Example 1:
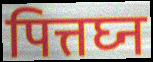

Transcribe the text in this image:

पित्तघ्न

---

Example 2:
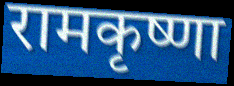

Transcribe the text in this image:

रामकृष्णा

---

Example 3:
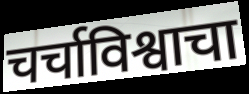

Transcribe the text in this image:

चर्चाविश्वाचा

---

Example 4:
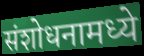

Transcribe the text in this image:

संशोधनामध्ये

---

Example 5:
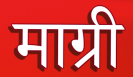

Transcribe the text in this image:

माग्री